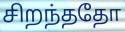
சிறந்ததோ